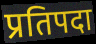
प्रतिपदा